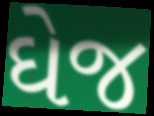
ઘેજ